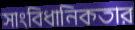
সাংবিধানিকতার